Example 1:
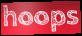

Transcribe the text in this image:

hoops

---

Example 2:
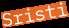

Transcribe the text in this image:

Sristi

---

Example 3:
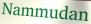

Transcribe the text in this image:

Nammudan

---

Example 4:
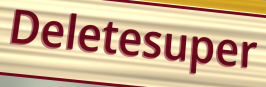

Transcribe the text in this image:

Deletesuper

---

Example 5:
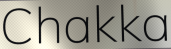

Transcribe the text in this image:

Chakka